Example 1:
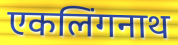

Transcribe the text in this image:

एकलिंगनाथ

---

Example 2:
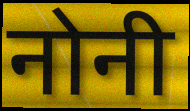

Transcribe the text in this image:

नोनी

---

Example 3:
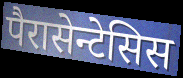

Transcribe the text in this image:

पैरासेन्टेसिस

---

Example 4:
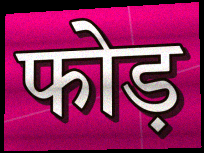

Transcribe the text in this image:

फोड़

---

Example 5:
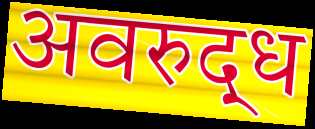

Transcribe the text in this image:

अवरुद्ध